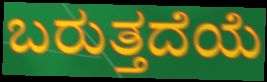
ಬರುತ್ತದೆಯೆ